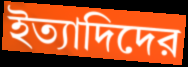
ইত্যাদিদের